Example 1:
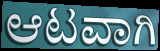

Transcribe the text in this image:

ಆಟವಾಗಿ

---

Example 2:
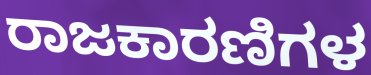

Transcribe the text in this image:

ರಾಜಕಾರಣಿಗಳ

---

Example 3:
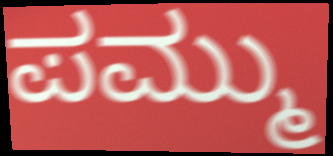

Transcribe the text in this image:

ಪಮ್ಮು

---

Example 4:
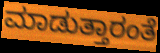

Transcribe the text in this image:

ಮಾಡುತ್ತಾರಂತೆ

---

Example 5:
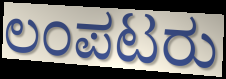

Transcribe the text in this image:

ಲಂಪಟರು